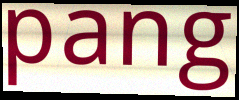
pang